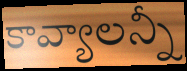
కావ్యాలన్నీ